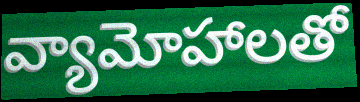
వ్యామోహాలతో